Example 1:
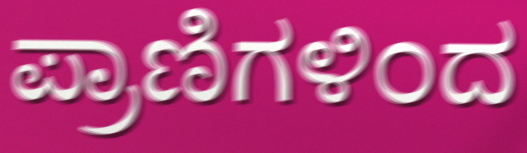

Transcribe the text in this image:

ಪ್ರಾಣಿಗಳಿಂದ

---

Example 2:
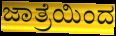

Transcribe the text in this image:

ಜಾತ್ರೆಯಿಂದ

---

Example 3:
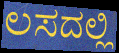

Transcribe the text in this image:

ಲಸದಲ್ಲಿ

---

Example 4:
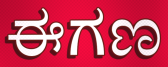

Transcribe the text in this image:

ಈಗಣ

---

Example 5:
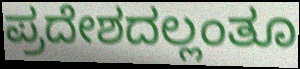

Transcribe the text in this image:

ಪ್ರದೇಶದಲ್ಲಂತೂ